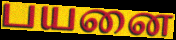
பயனை